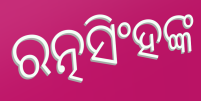
ରତ୍ନସିଂହଙ୍କ